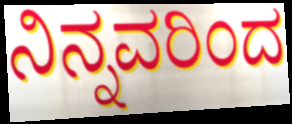
ನಿನ್ನವರಿಂದ